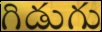
గిడుగు